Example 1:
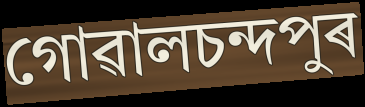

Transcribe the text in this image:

গোৱালচন্দপুৰ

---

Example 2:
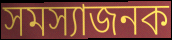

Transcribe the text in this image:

সমস্যাজনক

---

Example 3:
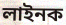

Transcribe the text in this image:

লাইনক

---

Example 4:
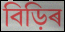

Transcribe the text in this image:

বিড়িৰ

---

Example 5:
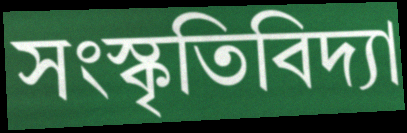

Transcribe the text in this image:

সংস্কৃতিবিদ্য়া